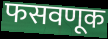
फसवणूक